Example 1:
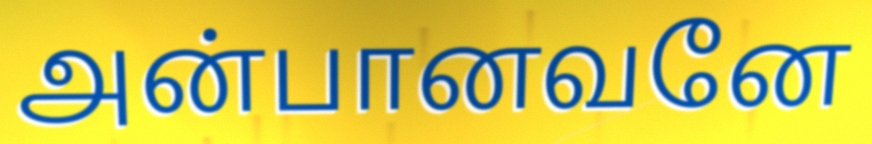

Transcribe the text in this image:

அன்பானவனே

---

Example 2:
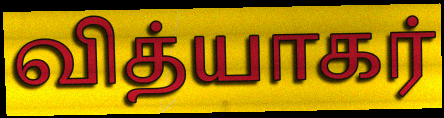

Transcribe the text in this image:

வித்யாகர்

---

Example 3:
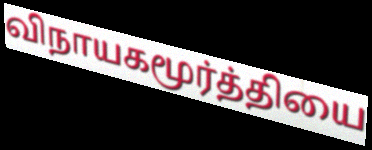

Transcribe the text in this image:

விநாயகமூர்த்தியை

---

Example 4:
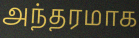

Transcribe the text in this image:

அந்தரமாக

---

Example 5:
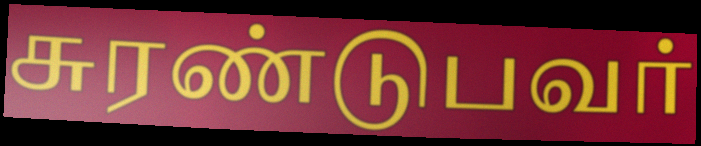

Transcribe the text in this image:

சுரண்டுபவர்